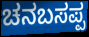
ಚನಬಸಪ್ಪ